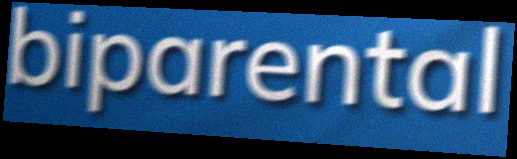
biparental